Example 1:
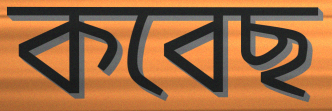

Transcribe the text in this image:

কবেছ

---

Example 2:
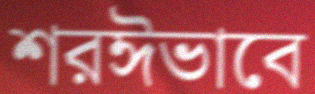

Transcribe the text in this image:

শরঈভাবে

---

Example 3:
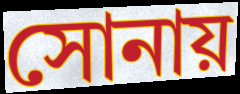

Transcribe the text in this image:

সোনায়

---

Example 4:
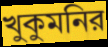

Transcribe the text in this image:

খুকুমনির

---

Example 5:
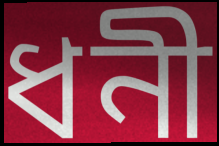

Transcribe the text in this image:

ধনী